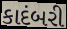
કાદંબરી